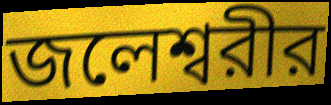
জলেশ্বরীর